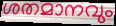
ശതമാനവും